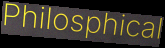
Philosphical